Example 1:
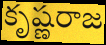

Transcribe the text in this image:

కృష్ణరాజ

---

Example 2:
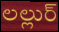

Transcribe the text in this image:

లల్లుర్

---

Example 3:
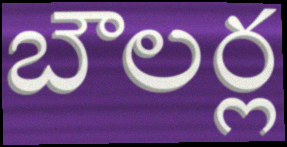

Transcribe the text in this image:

బౌలర్ల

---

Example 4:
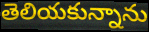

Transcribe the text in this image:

తెలియకున్నాను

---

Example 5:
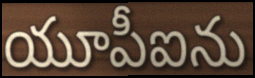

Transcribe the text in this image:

యూపీఐను